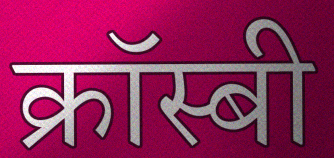
क्रॉस्बी